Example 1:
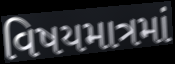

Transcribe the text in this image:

વિષયમાત્રમાં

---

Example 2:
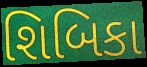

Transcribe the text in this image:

શિબિકા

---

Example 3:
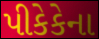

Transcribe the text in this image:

પીકેકેના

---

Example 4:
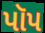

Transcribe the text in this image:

પૉપ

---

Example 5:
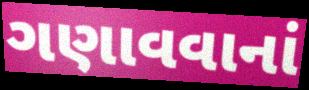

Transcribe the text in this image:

ગણાવવાનાં